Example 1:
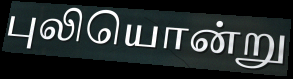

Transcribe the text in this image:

புலியொன்று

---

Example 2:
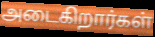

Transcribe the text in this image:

அடைகிறார்கள்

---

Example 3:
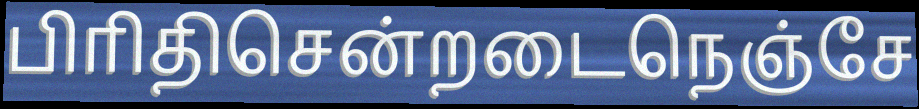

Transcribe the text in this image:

பிரிதிசென்றடைநெஞ்சே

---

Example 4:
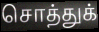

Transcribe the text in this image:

சொத்துக்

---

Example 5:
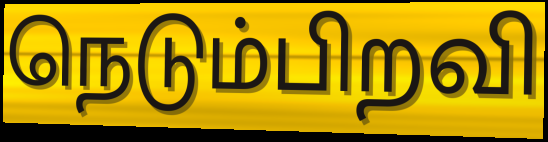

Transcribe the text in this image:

நெடும்பிறவி